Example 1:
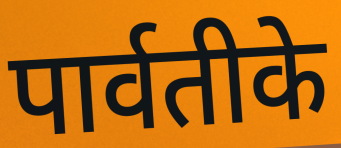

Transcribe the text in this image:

पार्वतीके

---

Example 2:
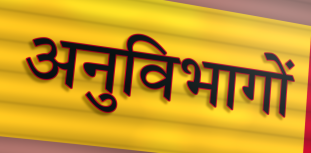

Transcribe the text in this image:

अनुविभागों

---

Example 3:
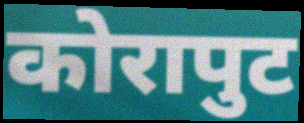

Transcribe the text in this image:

कोरापुट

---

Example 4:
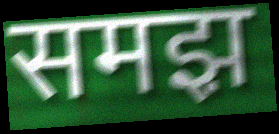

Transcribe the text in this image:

समझ़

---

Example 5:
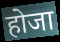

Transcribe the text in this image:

होजा